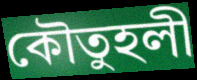
কৌতুহলী